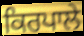
ਕਿਰਪਾਲੇ